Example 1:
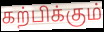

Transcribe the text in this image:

கற்பிக்கும்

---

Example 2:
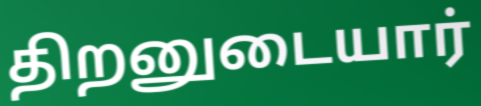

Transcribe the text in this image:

திறனுடையார்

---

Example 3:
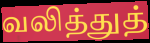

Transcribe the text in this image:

வலித்துத்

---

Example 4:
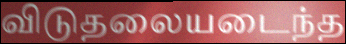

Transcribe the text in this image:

விடுதலையடைந்த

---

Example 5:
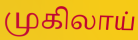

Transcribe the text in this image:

முகிலாய்